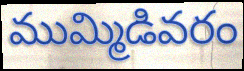
ముమ్మిడివరం